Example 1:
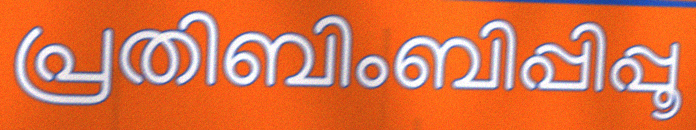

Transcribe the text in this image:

പ്രതിബിംബിപ്പിപ്പൂ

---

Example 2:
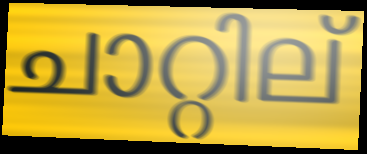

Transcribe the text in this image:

ചാറ്റില്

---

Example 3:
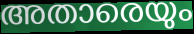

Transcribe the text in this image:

അതാരെയും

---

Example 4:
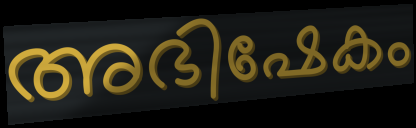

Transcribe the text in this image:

അഭിഷേകം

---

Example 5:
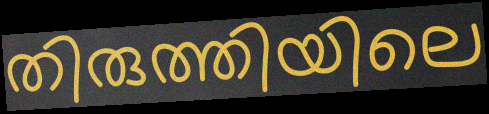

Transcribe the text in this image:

തിരുത്തിയിലെ